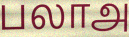
பலாஅ